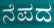
ನೆಪದ